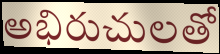
అభిరుచులతో